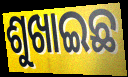
ଶୁଖାଇଛ